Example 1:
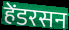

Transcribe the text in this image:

हेंडरसन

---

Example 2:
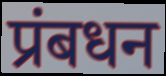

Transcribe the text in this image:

प्रंबधन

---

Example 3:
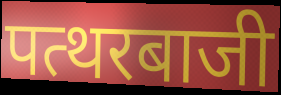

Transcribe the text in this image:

पत्थरबाजी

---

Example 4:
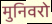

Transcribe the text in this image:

मुनिवरो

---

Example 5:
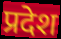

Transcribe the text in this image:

प्रदेश